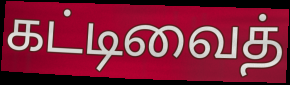
கட்டிவைத்